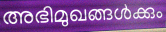
അഭിമുഖങ്ങൾക്കും